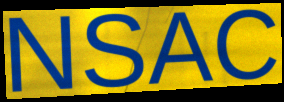
NSAC